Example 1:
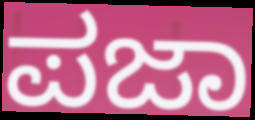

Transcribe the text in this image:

ಪಜಾ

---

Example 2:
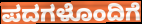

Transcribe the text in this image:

ಪದಗಳೊಂದಿಗೆ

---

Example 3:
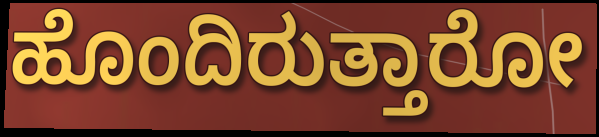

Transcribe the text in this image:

ಹೊಂದಿರುತ್ತಾರೋ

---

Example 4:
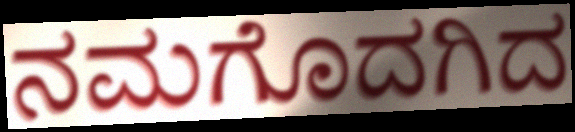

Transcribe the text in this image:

ನಮಗೊದಗಿದ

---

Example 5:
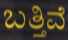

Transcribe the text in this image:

ಬತ್ತಿವೆ